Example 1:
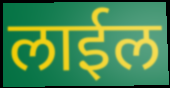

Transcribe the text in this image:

लाईल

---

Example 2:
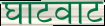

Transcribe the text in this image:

घाटवाट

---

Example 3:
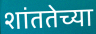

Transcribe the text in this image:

शांततेच्या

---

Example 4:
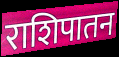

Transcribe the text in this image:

राशिपातन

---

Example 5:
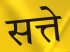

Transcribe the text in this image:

सत्ते